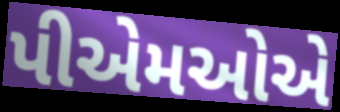
પીએમઓએ